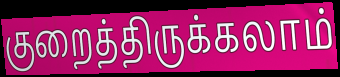
குறைத்திருக்கலாம்